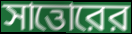
সাত্তোরের